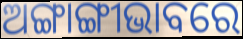
ଅଙ୍ଗାଙ୍ଗୀଭାବରେ